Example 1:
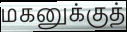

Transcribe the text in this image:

மகனுக்குத்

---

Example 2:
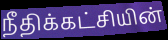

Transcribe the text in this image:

நீதிக்கட்சியின்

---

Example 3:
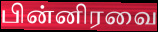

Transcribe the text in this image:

பின்னிரவை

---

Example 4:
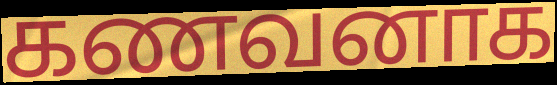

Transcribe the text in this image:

கணவனாக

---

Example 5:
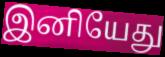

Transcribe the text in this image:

இனியேது